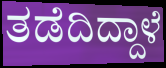
ತಡೆದಿದ್ದಾಳೆ